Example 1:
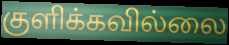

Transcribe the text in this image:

குளிக்கவில்லை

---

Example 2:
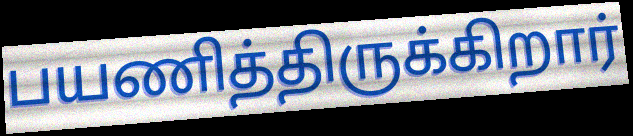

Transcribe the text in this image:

பயணித்திருக்கிறார்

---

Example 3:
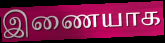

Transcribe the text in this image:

இணையாக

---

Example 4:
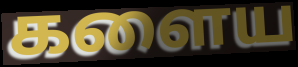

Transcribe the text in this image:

களைய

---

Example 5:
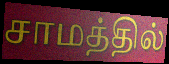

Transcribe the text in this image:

சாமத்தில்